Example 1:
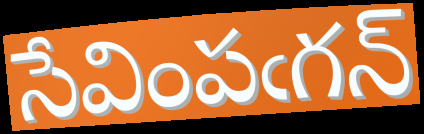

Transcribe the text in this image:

సేవింపఁగన్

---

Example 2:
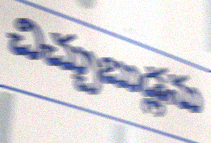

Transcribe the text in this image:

చిచ్చుబుడ్లను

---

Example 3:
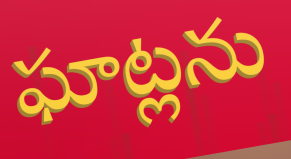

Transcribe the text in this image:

ఘాట్లను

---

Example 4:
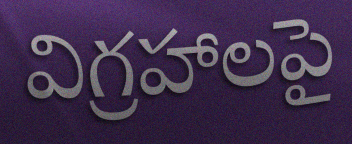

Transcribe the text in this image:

విగ్రహాలపై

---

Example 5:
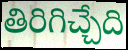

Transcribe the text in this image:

తిరిగిచ్చేది